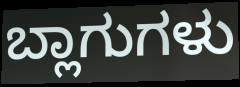
ಬ್ಲಾಗುಗಳು